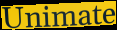
Unimate